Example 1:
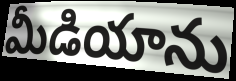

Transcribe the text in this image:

మీడియాను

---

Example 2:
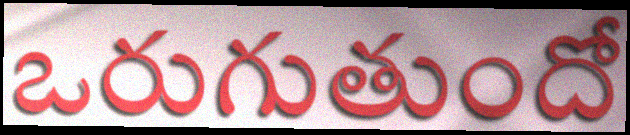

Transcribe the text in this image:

ఒరుగుతుందో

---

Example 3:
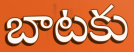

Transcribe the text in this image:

బాటకు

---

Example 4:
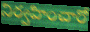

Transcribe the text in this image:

నిర్వహించారో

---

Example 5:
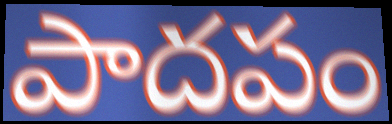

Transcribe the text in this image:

పాదపం